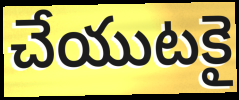
చేయుటకై